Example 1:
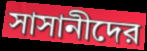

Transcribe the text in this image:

সাসানীদের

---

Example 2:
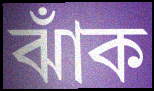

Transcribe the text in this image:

ঝাঁক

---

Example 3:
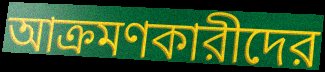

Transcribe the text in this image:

আক্রমণকারীদের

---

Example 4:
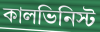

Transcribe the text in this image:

কালভিনিস্ট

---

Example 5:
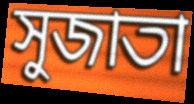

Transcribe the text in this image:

সুজাতা